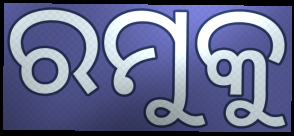
ରମୁକୁ